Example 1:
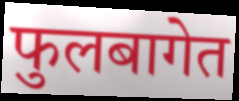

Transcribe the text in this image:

फुलबागेत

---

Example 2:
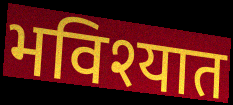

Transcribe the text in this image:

भविश्यात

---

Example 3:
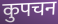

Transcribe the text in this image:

कुपचन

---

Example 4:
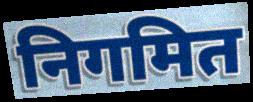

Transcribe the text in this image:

निगमित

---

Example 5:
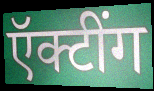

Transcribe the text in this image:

ऍक्टींग